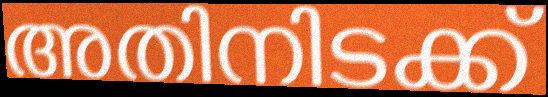
അതിനിടക്ക്